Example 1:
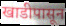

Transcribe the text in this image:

खाडीपासून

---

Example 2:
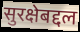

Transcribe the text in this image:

सुरक्षेबद्दल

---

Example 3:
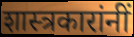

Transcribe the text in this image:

शास्त्रकारांनीं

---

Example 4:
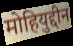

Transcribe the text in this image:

मोहियुद्दीन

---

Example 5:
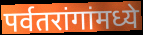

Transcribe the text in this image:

पर्वतरांगांमध्ये